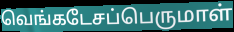
வெங்கடேசப்பெருமாள்